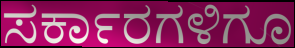
ಸರ್ಕಾರಗಳಿಗೂ